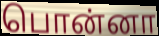
பொன்னா